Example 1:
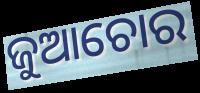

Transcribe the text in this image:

ଜୁଆଚୋର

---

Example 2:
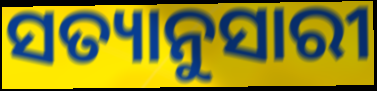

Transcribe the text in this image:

ସତ୍ୟାନୁସାରୀ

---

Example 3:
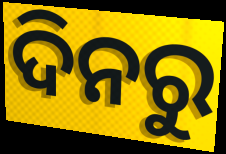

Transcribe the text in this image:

ଦିନରୁ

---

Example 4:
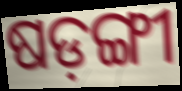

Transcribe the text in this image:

ଷଡ଼ଙ୍ଗୀ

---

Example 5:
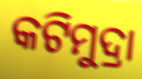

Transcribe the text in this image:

କଟିମୁଦ୍ରା